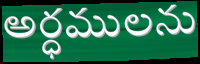
అర్ధములను